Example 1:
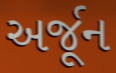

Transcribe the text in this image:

અર્જૂન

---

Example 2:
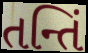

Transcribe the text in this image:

તન્તિં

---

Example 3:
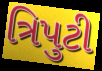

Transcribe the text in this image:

ત્રિપુટી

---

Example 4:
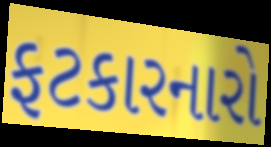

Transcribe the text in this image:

ફટકારનારો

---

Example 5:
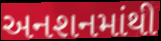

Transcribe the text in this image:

અનશનમાંથી